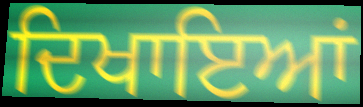
ਦਿਖਾਇਆਂ